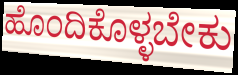
ಹೊಂದಿಕೊಳ್ಳಬೇಕು